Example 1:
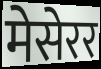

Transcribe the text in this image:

मेसेरर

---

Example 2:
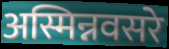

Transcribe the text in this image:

अस्मिन्नवसरे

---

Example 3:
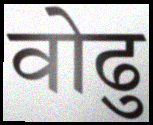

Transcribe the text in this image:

वोढु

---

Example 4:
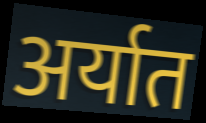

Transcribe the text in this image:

अर्यात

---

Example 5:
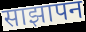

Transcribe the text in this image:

साझापन